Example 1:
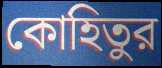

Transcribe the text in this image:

কোহিতুর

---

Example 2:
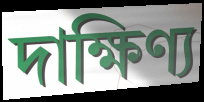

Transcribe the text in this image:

দাক্ষিণ্য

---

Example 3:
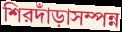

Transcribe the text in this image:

শিরদাঁড়াসম্পন্ন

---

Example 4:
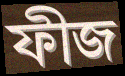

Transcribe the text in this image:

ফীজ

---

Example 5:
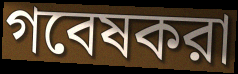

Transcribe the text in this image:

গবেষকরা